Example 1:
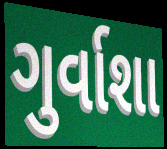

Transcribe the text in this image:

ગુર્વાશા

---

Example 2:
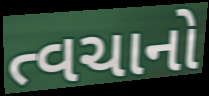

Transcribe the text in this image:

ત્વચાનો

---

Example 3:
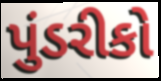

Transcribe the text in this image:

પુંડરીકો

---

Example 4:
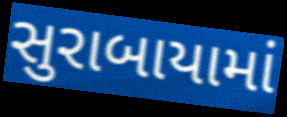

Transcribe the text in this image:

સુરાબાયામાં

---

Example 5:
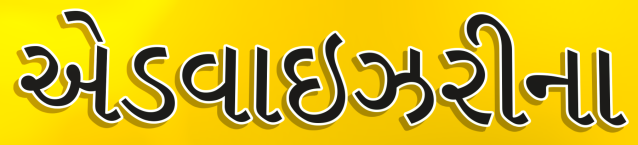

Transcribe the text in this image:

એડવાઇઝરીના